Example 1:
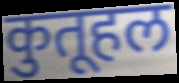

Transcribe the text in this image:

कुतूहल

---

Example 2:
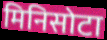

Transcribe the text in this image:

मिनिसोटा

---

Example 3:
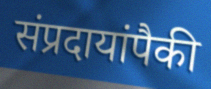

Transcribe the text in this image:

संप्रदायांपैकी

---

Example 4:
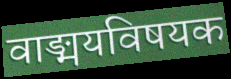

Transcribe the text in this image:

वाङ्मयविषयक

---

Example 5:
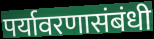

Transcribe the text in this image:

पर्यावरणासंबंधी